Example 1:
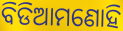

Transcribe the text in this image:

ବିଡିଆମଣୋହି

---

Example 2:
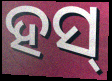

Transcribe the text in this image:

ହସ୍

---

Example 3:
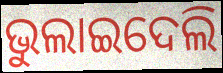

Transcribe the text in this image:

ଭୁଲାଇଦେଲି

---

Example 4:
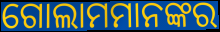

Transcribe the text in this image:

ଗୋଲାମମାନଙ୍କର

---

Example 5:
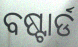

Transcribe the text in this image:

ବଷ୍ଟାର୍ଡ